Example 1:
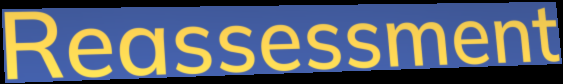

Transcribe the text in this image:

Reassessment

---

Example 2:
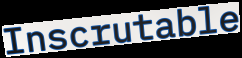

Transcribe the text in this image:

Inscrutable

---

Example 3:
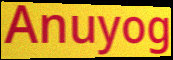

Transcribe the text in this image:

Anuyog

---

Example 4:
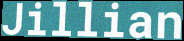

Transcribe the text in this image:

Jillian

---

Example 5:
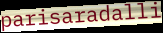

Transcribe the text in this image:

parisaradalli